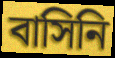
বাসিনি